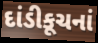
દાંડીકૂચનાં